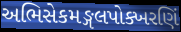
અભિસેકમઙ્ગલપોક્ખરણિં